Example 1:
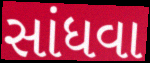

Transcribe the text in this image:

સાંધવા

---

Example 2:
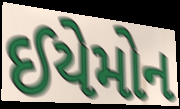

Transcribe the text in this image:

ઈયેમોન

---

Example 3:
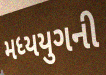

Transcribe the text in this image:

મધ્યયુગની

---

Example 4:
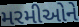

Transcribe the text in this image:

મરમીઓને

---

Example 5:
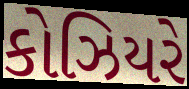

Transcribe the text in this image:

કોઝિયરે